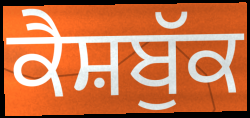
ਕੈਸ਼ਬੁੱਕ